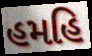
હમહિ